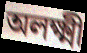
অলক্ষ্মী